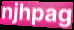
njhpag